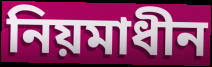
নিয়মাধীন